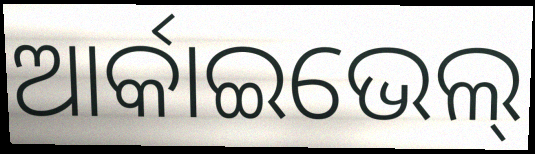
ଆର୍କାଇଭେଲ୍